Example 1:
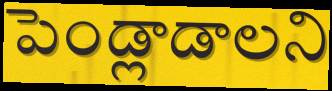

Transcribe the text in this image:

పెండ్లాడాలని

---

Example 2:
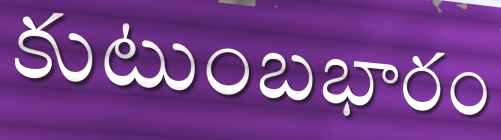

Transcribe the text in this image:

కుటుంబభారం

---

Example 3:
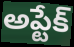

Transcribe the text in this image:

అప్టేక్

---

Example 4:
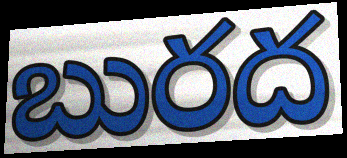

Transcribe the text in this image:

బురద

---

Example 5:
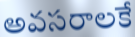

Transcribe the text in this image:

అవసరాలకే